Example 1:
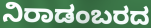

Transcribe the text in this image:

ನಿರಾಡಂಬರದ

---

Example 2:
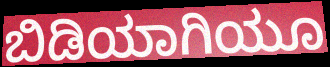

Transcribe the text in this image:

ಬಿಡಿಯಾಗಿಯೂ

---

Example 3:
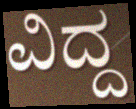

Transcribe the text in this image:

ವಿದ್ದ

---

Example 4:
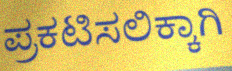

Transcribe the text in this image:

ಪ್ರಕಟಿಸಲಿಕ್ಕಾಗಿ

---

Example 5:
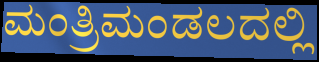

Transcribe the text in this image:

ಮಂತ್ರಿಮಂಡಲದಲ್ಲಿ